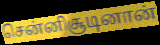
சென்னிசூடினான்